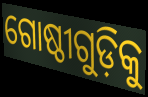
ଗୋଷ୍ଠୀଗୁଡ଼ିକୁ